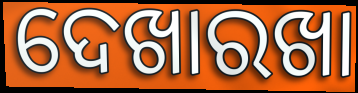
ଦେଖାରଖା